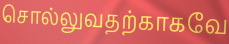
சொல்லுவதற்காகவே